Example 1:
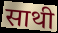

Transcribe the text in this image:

साथी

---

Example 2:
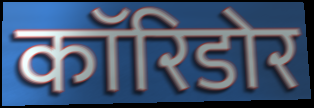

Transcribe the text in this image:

कॉरिडोर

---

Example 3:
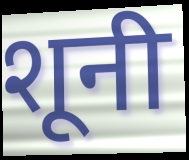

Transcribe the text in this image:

शूनी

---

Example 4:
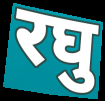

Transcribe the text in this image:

रघु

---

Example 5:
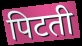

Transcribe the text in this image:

पिटती